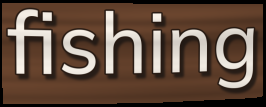
fishing